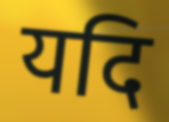
यदि